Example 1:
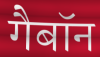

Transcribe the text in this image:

गैबॉन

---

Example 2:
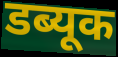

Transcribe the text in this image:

डब्यूक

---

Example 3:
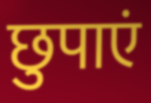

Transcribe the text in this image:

छुपाएं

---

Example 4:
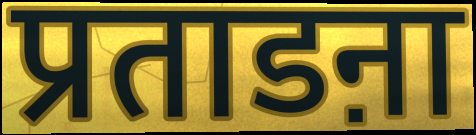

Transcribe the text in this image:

प्रताडऩा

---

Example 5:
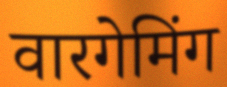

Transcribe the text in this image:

वारगेमिंग